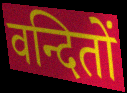
वन्दितों